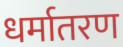
धर्मातरण